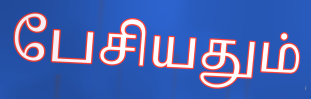
பேசியதும்